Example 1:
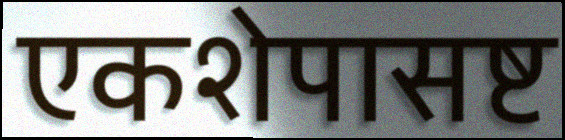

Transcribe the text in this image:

एकशेपासष्ट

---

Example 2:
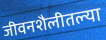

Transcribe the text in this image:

जीवनशैलीतल्या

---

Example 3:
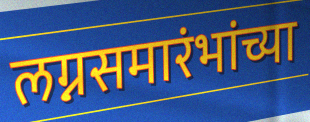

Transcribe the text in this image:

लग्नसमारंभांच्या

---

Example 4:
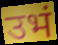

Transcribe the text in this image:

उभं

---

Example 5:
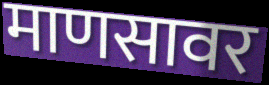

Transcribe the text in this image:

माणसावर